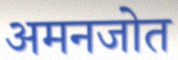
अमनजोत